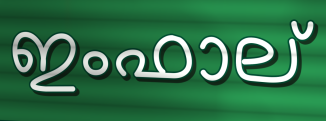
ഇംഫാല്